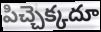
పిచ్చెక్కదూ